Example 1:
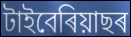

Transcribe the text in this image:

টাইবেৰিয়াছৰ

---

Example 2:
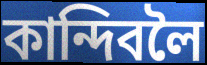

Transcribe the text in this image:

কান্দিবলৈ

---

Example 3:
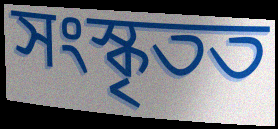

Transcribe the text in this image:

সংস্কৃতত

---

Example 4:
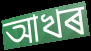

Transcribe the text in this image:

আখৰ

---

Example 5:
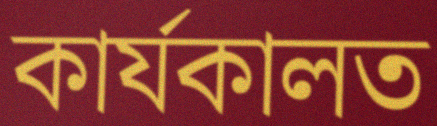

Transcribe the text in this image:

কাৰ্যকালত